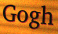
Gogh